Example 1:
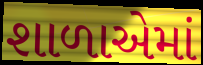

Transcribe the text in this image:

શાળાએમાં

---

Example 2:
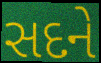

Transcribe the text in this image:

સદને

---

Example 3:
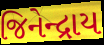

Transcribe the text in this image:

જિનેન્દ્રાય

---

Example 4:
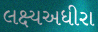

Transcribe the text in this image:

લક્ષ્યઅધીરા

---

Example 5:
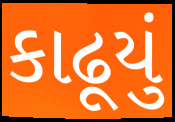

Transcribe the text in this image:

કાઢૂયું